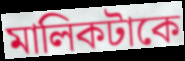
মালিকটাকে